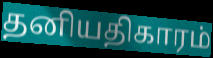
தனியதிகாரம்